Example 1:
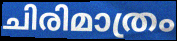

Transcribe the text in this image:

ചിരിമാത്രം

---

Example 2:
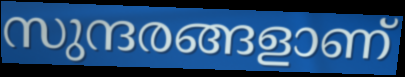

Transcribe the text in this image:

സുന്ദരങ്ങളാണ്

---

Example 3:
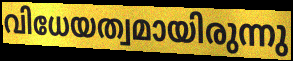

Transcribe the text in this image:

വിധേയത്വമായിരുന്നു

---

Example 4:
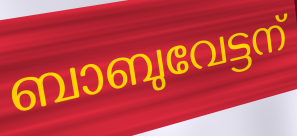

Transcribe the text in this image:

ബാബുവേട്ടന്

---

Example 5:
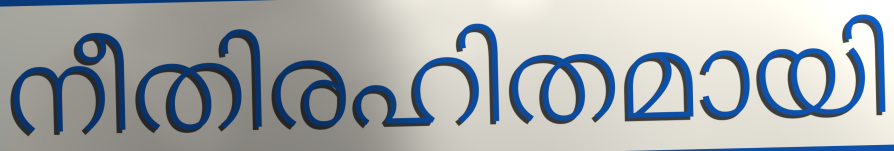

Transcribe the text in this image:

നീതിരഹിതമായി